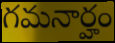
గమనార్హం